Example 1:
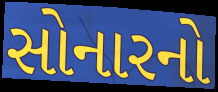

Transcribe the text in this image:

સોનારનો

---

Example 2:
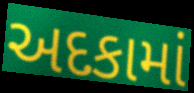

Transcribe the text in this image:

અદકામાં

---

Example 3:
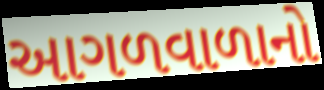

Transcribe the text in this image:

આગળવાળાનો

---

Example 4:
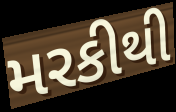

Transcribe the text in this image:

મરકીથી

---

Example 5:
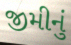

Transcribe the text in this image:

જીમીનું